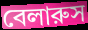
বেলারুস